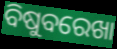
ବିଷୁବରେଖା